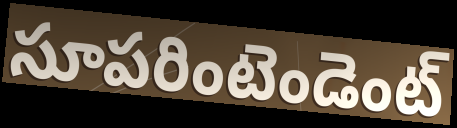
సూపరింటెండెంట్